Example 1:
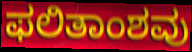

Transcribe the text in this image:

ಫಲಿತಾಂಶವು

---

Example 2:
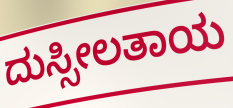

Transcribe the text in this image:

ದುಸ್ಸೀಲತಾಯ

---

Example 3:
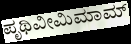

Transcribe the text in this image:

ಪೃಥಿವೀಮಿಮಾಮ್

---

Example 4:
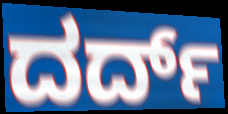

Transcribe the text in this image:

ದರ್ದ್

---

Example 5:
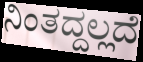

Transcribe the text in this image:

ನಿಂತದ್ದಲ್ಲದೆ